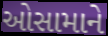
ઓસામાને